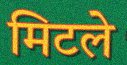
मिटले